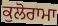
ਕੁਲੋਰਾਮਾ